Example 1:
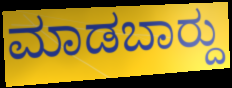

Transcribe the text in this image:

ಮಾಡಬಾರ್‍ದು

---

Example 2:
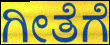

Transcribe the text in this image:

ಗೀತೆಗೆ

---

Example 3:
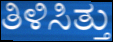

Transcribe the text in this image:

ತಿಳಿಸಿತ್ತು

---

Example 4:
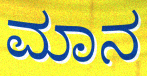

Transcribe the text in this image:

ಮಾನ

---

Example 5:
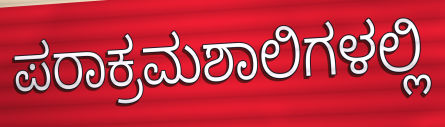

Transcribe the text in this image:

ಪರಾಕ್ರಮಶಾಲಿಗಳಲ್ಲಿ